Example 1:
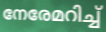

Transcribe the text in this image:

നേരേമറിച്ച്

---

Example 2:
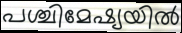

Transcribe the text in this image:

പശ്ചിമേഷ്യയിൽ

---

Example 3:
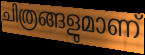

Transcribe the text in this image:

ചിത്രങ്ങളുമാണ്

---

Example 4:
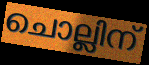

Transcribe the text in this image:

ചൊല്ലിന്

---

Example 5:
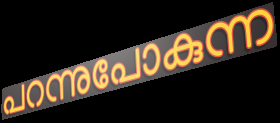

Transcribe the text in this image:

പറന്നുപോകുന്ന